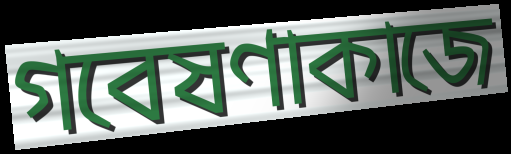
গবেষণাকাজে